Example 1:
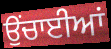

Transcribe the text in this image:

ਉਂਚਾਈਆਂ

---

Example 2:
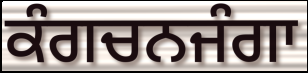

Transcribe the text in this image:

ਕੰਗਚਨਜੰਗਾ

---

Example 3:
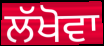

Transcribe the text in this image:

ਲੱਖੋਵਾ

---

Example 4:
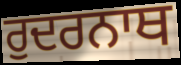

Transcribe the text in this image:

ਰੁਦਰਨਾਥ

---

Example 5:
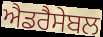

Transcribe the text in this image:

ਐਡਰੈਸੇਬਲ